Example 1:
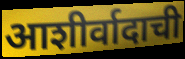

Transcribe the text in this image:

आशीर्वादाची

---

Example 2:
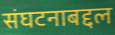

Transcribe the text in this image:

संघटनाबद्दल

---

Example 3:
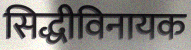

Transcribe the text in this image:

सिद्धीविनायक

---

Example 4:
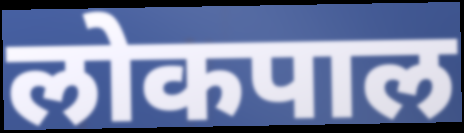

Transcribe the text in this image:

लोकपाल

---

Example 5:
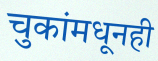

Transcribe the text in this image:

चुकांमधूनही